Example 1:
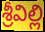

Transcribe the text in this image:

శ్రీవిల్లి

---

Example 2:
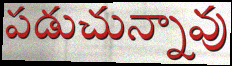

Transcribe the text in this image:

పడుచున్నావు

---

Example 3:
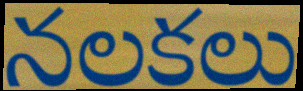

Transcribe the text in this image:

నలకలు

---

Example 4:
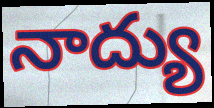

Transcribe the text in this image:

నాద్యు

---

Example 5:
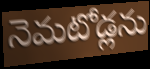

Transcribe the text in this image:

నెమటోడ్లను